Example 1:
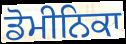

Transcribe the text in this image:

ਡੋਮੀਨਿਕਾ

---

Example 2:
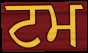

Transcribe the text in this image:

ਟਮ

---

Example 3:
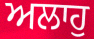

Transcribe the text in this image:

ਅਲਾਹੁ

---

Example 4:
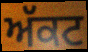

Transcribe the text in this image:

ਅੱਕਟ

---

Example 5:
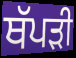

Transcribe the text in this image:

ਥੱਪੜੀ